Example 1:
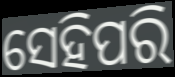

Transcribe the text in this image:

ସେହିପରି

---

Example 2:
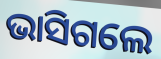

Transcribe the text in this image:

ଭାସିଗଲେ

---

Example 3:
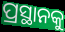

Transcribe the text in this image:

ପ୍ରସ୍ଥାନକୁ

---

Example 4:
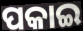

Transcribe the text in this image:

ପକାଇ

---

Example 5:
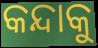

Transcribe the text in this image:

କନ୍ଦାକୁ